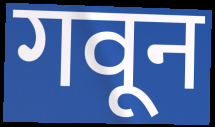
गवून